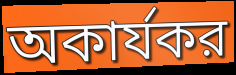
অকার্যকর